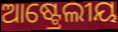
ଆଷ୍ଟ୍ରେଲୀୟ